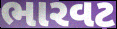
ભારવટ